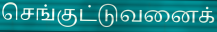
செங்குட்டுவனைக்